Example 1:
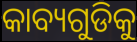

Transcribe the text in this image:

କାବ୍ୟଗୁଡିକୁ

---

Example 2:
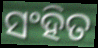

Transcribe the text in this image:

ସଂହିତ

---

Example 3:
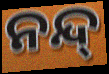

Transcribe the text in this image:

ନନ୍ଦ୍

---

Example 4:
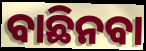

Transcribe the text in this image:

ବାଛିନବା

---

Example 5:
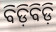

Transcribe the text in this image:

ବିଡ଼ିବିଡ଼ି